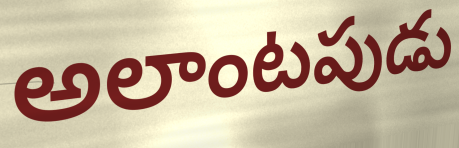
అలాంటపుడు